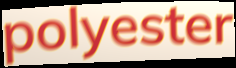
polyester